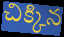
చిక్కిన